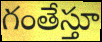
గంతేస్తూ